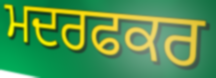
ਮਦਰਫਕਰ